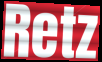
Retz